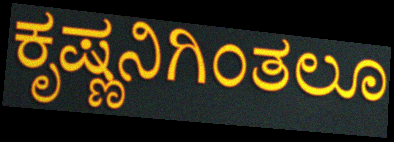
ಕೃಷ್ಣನಿಗಿಂತಲೂ